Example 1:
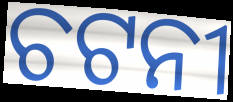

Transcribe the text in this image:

ଚଟନୀ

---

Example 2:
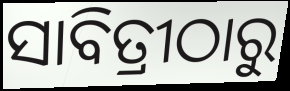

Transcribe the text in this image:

ସାବିତ୍ରୀଠାରୁ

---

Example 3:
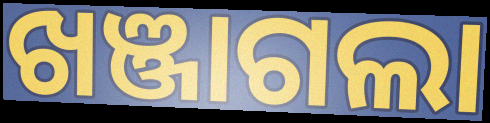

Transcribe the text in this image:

ଖଞ୍ଜାଗଲା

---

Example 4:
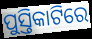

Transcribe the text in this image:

ପୁସ୍ତିକାଟିରେ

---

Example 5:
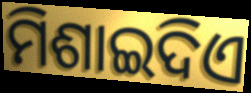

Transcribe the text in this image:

ମିଶାଇଦିଏ